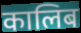
कालिब